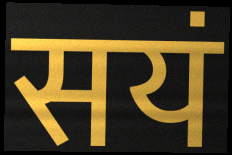
सयं